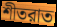
শীতরাত